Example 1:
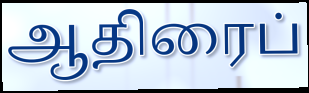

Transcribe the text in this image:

ஆதிரைப்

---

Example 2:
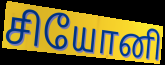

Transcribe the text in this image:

சியோனி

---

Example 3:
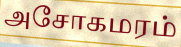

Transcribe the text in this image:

அசோகமரம்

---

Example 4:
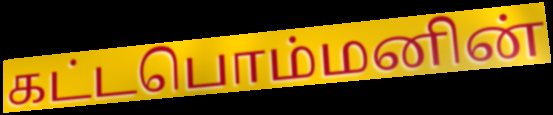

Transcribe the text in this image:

கட்டபொம்மனின்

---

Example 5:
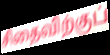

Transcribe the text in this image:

சிதைவிற்குப்